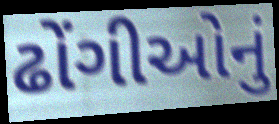
ઢોંગીઓનું